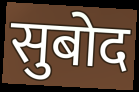
सुबोद